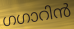
ഗഗാറിൻ